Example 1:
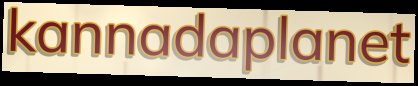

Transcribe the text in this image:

kannadaplanet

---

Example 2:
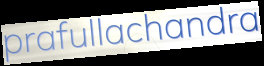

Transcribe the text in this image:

prafullachandra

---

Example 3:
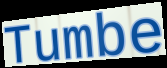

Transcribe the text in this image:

Tumbe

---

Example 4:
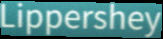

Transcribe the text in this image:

Lippershey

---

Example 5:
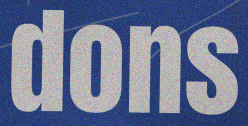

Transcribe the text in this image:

dons